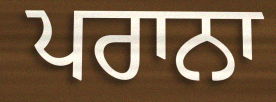
ਪਰਾਨਾ